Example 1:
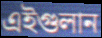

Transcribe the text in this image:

এইগুলান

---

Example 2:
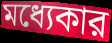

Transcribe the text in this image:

মধ্যেকার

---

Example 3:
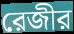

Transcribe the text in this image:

রেজীর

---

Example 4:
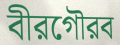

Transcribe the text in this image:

বীরগৌরব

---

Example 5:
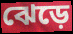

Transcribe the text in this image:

ঝেড়ে